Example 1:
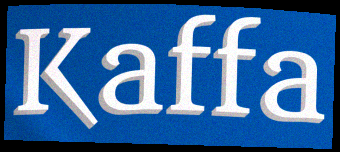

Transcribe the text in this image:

Kaffa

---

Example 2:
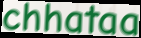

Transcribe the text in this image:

chhataa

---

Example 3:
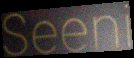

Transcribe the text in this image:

Seeni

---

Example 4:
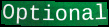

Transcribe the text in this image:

Optional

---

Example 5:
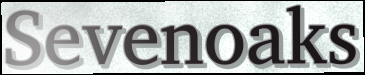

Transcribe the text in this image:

Sevenoaks